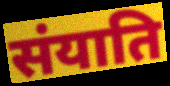
संयाति